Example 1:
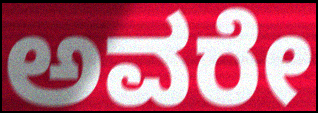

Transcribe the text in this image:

ಅವರೇ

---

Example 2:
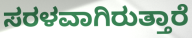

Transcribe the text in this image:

ಸರಳವಾಗಿರುತ್ತಾರೆ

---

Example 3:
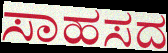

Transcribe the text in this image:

ಸಾಹಸದ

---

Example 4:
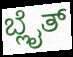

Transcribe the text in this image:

ಬ್ಲೈತ್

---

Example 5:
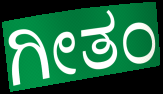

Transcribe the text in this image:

ಗೀತಂ